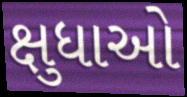
ક્ષુધાઓ